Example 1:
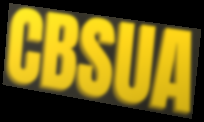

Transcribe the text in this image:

CBSUA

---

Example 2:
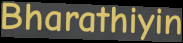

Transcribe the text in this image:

Bharathiyin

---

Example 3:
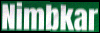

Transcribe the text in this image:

Nimbkar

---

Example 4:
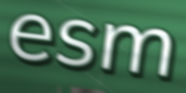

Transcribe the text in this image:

esm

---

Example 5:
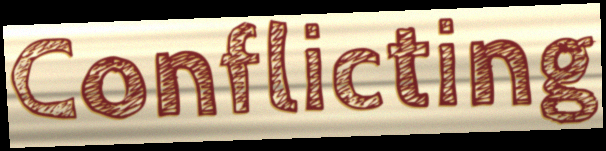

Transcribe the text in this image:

Conflicting